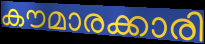
കൗമാരക്കാരി